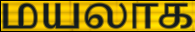
மயலாக